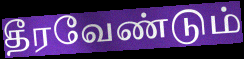
தீரவேண்டும்